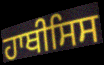
ਹਾਥੀਸਿਸ